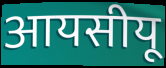
आयसीयू